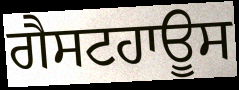
ਗੈਸਟਹਾਊਸ